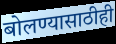
बोलण्यासाठीही